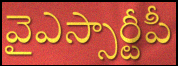
వైఎస్సార్టీపీ